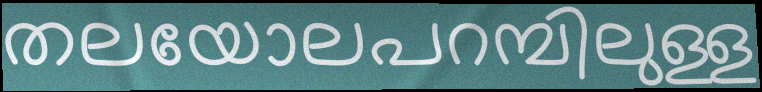
തലയോലപറമ്പിലുള്ള